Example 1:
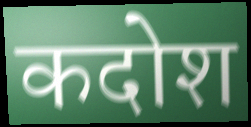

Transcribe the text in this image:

कदोश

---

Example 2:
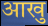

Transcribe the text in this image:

आखु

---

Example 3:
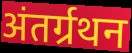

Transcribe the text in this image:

अंतर्ग्रथन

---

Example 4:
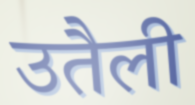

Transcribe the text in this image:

उतैली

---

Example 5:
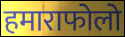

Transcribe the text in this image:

हमाराफोलो